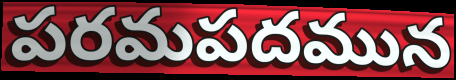
పరమపదమున